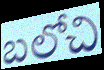
బలోచి